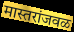
मास्तरांजवळ